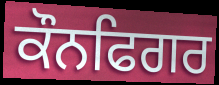
ਕੌਨਫਿਗਰ